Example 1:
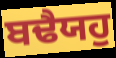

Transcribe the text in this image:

ਬਢੈਯਹੁ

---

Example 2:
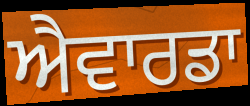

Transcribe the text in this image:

ਐਵਾਰਡਾ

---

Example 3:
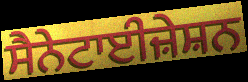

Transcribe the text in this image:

ਸੈਨੇਟਾਈਜ਼ੇਸ਼ਨ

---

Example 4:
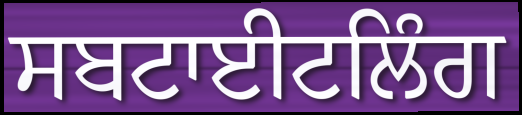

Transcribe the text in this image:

ਸਬਟਾਈਟਲਿੰਗ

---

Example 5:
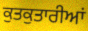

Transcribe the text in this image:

ਕੁਤਕੁਤਾਰੀਆਂ